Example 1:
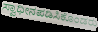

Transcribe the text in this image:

ಸ್ವಾಧೀನಪಡಿಸಿಕೊಂಡರು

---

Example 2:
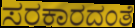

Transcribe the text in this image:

ಸರಕಾರದಂತೆ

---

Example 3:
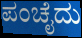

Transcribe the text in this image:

ಪಂಚೈದು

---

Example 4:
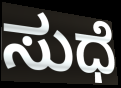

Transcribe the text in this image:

ಸುಧೆ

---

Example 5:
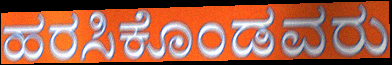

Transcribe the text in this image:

ಹರಸಿಕೊಂಡವರು